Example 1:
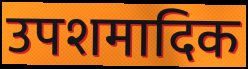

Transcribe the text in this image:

उपशमादिक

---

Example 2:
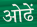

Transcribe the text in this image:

ओढें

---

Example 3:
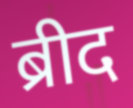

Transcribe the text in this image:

ब्रीद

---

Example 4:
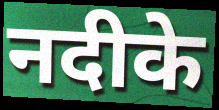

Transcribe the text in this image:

नदीके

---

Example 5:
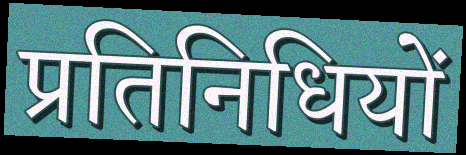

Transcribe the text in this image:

प्रतिनिधियों